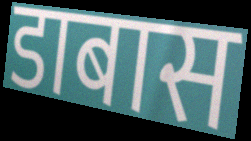
डाबास